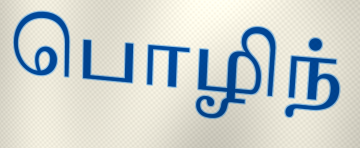
பொழிந்